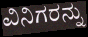
ವಿನಿಗರನ್ನು